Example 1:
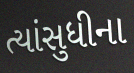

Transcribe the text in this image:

ત્યાંસુધીના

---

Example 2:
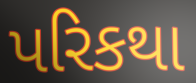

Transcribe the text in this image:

પરિકથા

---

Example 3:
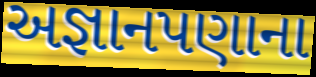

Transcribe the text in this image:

અજ્ઞાનપણાના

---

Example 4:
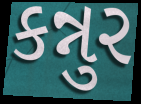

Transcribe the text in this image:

કન્નુર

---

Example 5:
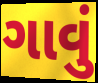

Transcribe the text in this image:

ગાવું